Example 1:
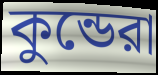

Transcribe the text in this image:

কুন্ডেরা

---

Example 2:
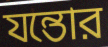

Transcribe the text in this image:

যন্তোর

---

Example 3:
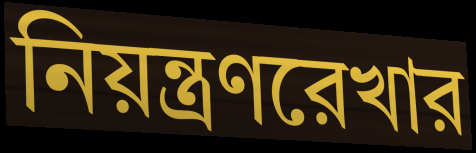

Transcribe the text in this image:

নিয়ন্ত্রণরেখার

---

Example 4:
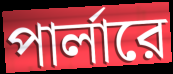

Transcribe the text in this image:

পার্লারে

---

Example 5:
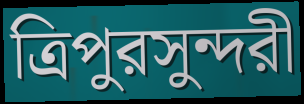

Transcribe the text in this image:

ত্রিপুরসুন্দরী